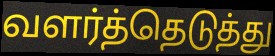
வளர்த்தெடுத்து